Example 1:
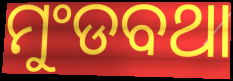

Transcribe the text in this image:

ମୁଂଡବଥା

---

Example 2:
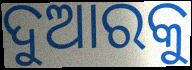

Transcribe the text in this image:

ଦୁଆରକୁ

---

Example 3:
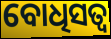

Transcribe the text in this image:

ବୋଧିସତ୍ୱ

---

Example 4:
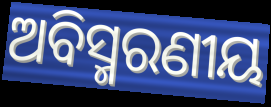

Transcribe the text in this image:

ଅବିସ୍ମରଣୀୟ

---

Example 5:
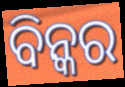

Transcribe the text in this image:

ବିନ୍କର